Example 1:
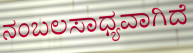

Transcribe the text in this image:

ನಂಬಲಸಾಧ್ಯವಾಗಿದೆ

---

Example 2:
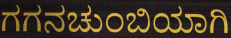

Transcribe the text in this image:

ಗಗನಚುಂಬಿಯಾಗಿ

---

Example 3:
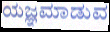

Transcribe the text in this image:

ಯಜ್ಞಮಾಡುವ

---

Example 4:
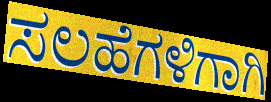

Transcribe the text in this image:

ಸಲಹೆಗಳಿಗಾಗಿ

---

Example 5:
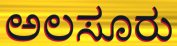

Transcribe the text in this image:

ಅಲಸೂರು